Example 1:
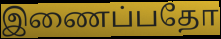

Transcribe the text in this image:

இணைப்பதோ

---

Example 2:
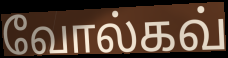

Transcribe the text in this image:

வோல்கவ்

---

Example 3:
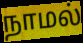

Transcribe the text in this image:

நாமல்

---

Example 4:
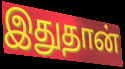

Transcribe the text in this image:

இதுதான்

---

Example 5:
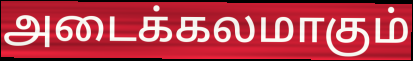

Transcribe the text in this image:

அடைக்கலமாகும்